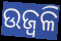
ଉଜ୍ୱଳି